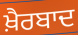
ਖ਼ੈਰਬਾਦ